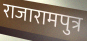
राजारामपुत्र